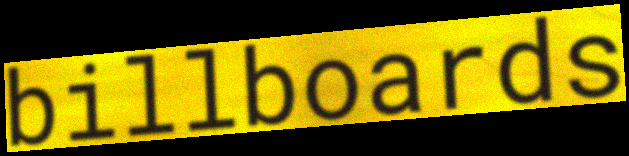
billboards